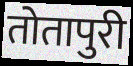
तोतापुरी